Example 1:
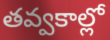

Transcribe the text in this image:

తవ్వకాల్లో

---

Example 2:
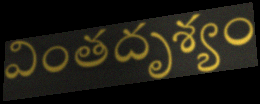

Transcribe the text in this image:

వింతదృశ్యం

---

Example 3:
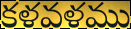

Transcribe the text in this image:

కళవళము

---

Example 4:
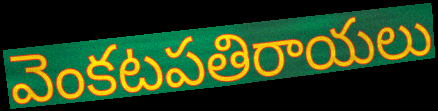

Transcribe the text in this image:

వెంకటపతిరాయలు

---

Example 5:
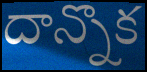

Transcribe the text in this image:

దాన్నొక